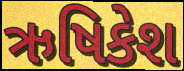
ઋષિકેશ